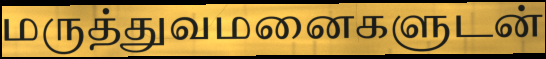
மருத்துவமனைகளுடன்